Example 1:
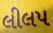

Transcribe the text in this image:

લીલપ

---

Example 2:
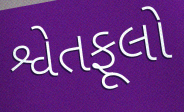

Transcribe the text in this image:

શ્વેતફૂલો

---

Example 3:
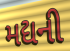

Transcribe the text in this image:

મદ્યની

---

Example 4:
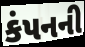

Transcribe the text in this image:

કંપનની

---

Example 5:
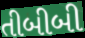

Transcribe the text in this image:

તીબીબી